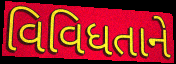
વિવિધતાને